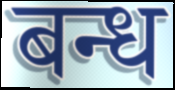
बन्ध